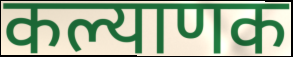
कल्याणक